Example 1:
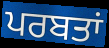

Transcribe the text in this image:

ਪਰਬਤਾਂ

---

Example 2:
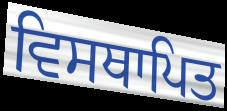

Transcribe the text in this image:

ਵਿਸਥਾਪਿਤ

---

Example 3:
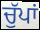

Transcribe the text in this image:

ਚੁੱਪਾਂ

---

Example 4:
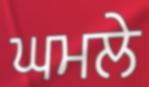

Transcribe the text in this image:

ਘਮਲੇ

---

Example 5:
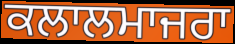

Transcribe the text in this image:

ਕਲਾਲਮਾਜਰਾ